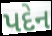
પદેન